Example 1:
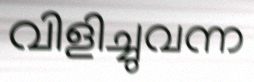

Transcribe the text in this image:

വിളിച്ചുവന്ന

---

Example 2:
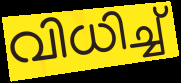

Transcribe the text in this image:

വിധിച്ച്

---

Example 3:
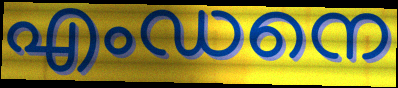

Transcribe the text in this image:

എംഡനെ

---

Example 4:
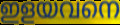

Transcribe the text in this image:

ഇളയവനെ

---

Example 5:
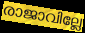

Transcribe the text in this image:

രാജാവില്ലേ